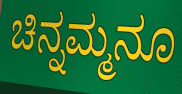
ಚಿನ್ನಮ್ಮನೂ